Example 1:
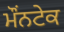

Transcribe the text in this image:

ਮੌਂਨਟੇਕ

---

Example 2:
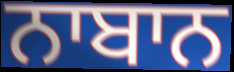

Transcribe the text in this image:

ਨਾਬਾਨ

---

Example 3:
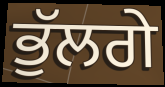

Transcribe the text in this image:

ਭੁੱਲਗੇ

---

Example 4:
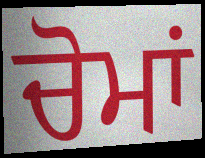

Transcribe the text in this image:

ਚੋਮਾਂ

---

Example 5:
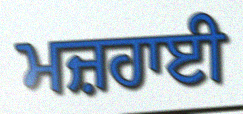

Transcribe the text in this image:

ਮਜ਼ਹਾਈ